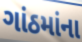
ગાંઠમાંના